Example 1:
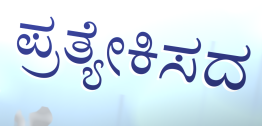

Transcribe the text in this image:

ಪ್ರತ್ಯೇಕಿಸದ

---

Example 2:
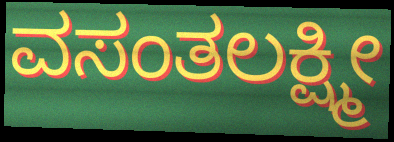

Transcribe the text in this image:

ವಸಂತಲಕ್ಷ್ಮೀ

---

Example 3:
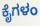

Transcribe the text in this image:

ಕೈಗಳಂ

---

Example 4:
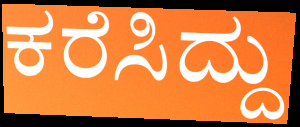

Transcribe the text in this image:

ಕರೆಸಿದ್ದು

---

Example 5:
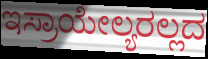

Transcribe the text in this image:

ಇಸ್ರಾಯೇಲ್ಯರಲ್ಲದ